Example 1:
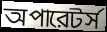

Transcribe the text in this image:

অপারেটর্স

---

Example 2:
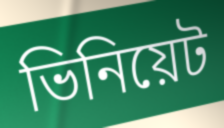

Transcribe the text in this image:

ভিনিয়েট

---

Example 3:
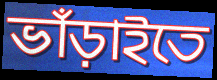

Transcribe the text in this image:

ভাঁড়াইতে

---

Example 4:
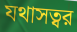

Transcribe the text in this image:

যথাসত্বর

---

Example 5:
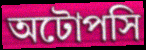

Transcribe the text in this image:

অটোপসি